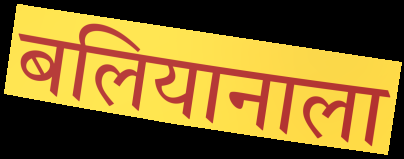
बलियानाला